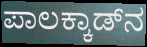
ಪಾಲಕ್ಕಾಡ್‌ನ